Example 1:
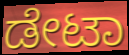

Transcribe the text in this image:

ಡೇಟಾ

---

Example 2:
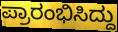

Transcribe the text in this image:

ಪ್ರಾರಂಭಿಸಿದ್ದು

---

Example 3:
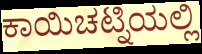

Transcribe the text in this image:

ಕಾಯಿಚಟ್ನಿಯಲ್ಲಿ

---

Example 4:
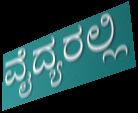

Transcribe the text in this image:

ವೈದ್ಯರಲ್ಲಿ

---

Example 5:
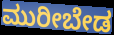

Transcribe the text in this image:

ಮುರೀಬೇಡ